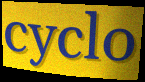
cyclo